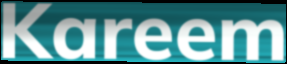
Kareem